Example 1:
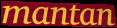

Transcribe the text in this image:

mantan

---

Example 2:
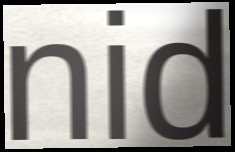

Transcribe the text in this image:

nid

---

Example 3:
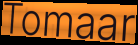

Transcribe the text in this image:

Tomaar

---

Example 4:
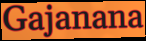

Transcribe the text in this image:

Gajanana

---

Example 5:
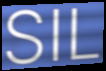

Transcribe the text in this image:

SIL